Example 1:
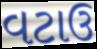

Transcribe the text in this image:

વટાઉ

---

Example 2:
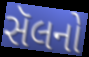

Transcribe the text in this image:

સૅલનો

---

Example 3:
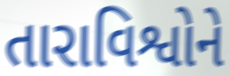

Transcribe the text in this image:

તારાવિશ્વોને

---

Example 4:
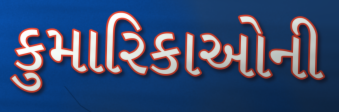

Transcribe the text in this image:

કુમારિકાઓની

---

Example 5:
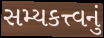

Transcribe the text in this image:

સમ્યકત્ત્વનું